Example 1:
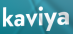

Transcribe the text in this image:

kaviya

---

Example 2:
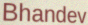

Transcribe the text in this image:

Bhandev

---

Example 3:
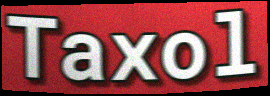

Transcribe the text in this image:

Taxol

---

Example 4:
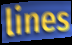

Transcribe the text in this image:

lines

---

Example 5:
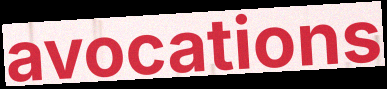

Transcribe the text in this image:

avocations